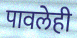
पावलेही